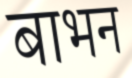
बाभन